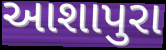
આશાપુરા